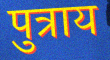
पुत्राय